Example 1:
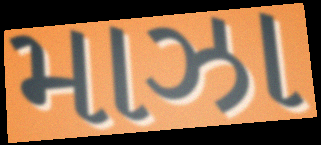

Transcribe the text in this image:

માઝા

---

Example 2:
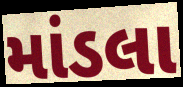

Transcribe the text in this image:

માંડલા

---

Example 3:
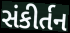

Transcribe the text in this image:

સંકીર્તન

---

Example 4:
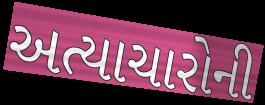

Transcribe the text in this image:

અત્યાચારોની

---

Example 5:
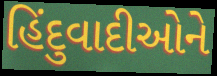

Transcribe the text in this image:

હિંદુવાદીઓને